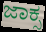
ಜಾಕ್ಸ